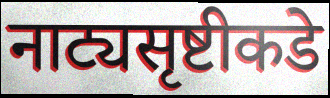
नाट्यसृष्टीकडे